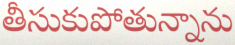
తీసుకుపోతున్నాను